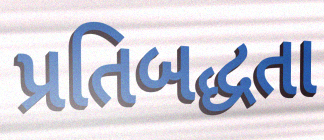
પ્રતિબદ્ધતા